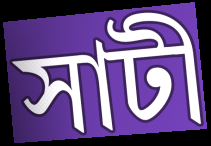
সাটী